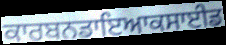
ਕਾਰਬਨਡਾਇਆਕਸਾਈਡ